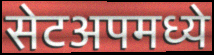
सेटअपमध्ये